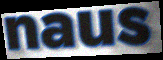
naus